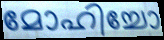
മോഹിച്ചോ